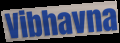
Vibhavna